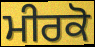
ਮੀਰਕੋ